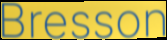
Bresson